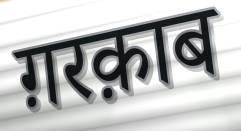
ग़रक़ाब